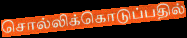
சொல்லிக்கொடுப்பதில்